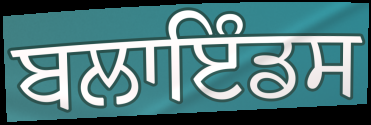
ਬਲਾਇੰਡਸ